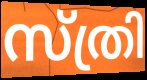
സ്ത്രി